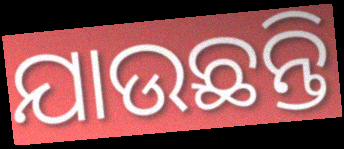
ଯାଉଛନ୍ତି